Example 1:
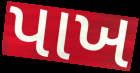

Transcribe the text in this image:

પાખ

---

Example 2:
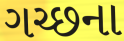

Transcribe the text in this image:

ગચ્છના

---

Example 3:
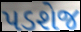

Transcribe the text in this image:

પડશેજ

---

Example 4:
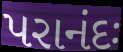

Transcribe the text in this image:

પરાનંદઃ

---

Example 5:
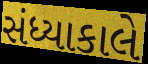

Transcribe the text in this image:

સંધ્યાકાલે